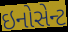
ઇનોસેન્ટ